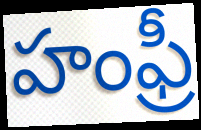
హంఫ్రీ